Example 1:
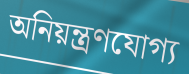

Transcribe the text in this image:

অনিয়ন্ত্রণযোগ্য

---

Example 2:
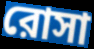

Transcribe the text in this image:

রোসা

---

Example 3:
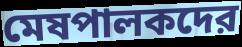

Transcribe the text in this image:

মেষপালকদের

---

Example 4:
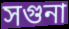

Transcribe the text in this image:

সগুনা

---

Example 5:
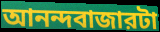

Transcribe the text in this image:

আনন্দবাজারটা